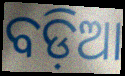
ବଡ଼ିଆ